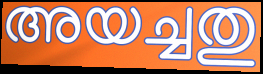
അയച്ചതു